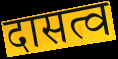
दासत्व